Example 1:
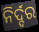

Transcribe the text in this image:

ନିର୍ଦ୍ଦର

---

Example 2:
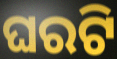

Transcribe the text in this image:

ଘରଟି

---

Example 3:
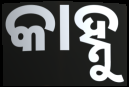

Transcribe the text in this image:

କାହ୍ନୁ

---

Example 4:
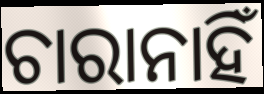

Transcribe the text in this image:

ଚାରାନାହିଁ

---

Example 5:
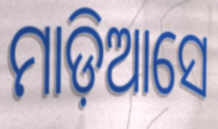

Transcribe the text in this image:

ମାଡ଼ିଆସେ